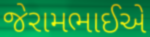
જેરામભાઈએ